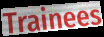
Trainees